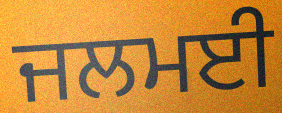
ਜਲਮਈ